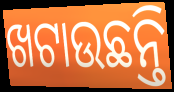
ଖଟାଉଛନ୍ତି